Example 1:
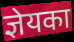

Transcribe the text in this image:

ज्ञेयका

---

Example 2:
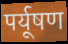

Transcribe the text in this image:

पर्यूषण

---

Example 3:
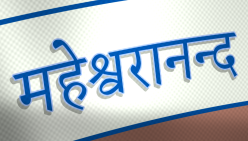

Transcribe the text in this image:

महेश्वरानन्द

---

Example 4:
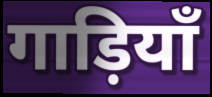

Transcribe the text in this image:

गाड़ियाँ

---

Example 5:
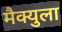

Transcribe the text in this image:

मैक्युला